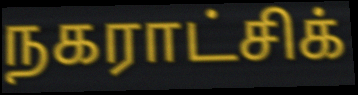
நகராட்சிக்